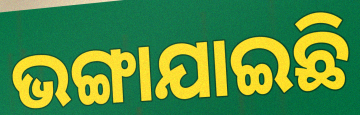
ଭଙ୍ଗାଯାଇଛି